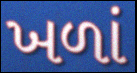
ખળાં